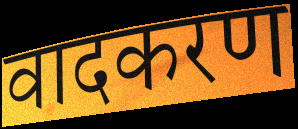
वादकरण